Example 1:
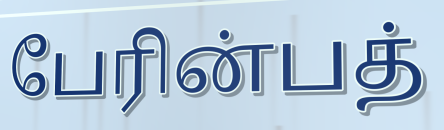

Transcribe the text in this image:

பேரின்பத்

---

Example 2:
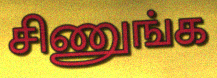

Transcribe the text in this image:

சிணுங்க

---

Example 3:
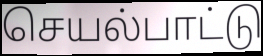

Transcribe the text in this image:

செயல்பாட்டு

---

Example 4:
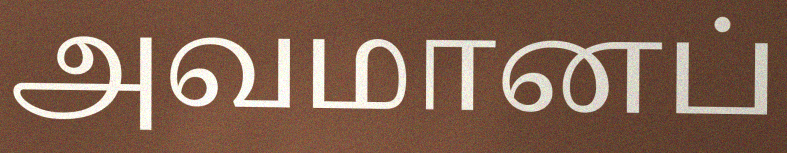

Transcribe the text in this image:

அவமானப்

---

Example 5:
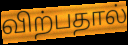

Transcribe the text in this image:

விற்பதால்